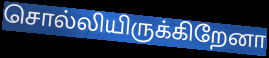
சொல்லியிருக்கிறேனா